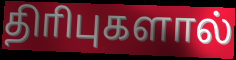
திரிபுகளால்